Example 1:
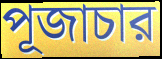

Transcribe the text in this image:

পূজাচার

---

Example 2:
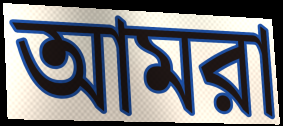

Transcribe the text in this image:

আমরা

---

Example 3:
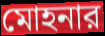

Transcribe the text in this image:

মোহনার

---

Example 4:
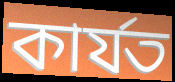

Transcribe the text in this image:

কার্যত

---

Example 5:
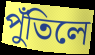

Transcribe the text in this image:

পুঁতিলে